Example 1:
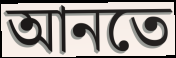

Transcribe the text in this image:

আনতে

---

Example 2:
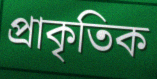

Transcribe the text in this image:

প্রাকৃতিক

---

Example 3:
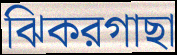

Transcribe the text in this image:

ঝিকরগাছা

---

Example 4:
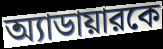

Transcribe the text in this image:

অ্যাডায়ারকে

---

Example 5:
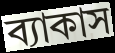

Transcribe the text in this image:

ব্যাকাস